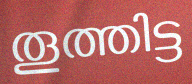
തൂത്തിട്ട